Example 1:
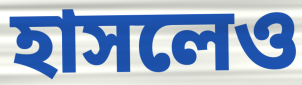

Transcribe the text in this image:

হাসলেও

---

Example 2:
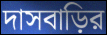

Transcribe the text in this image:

দাসবাড়ির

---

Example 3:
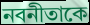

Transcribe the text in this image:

নবনীতাকে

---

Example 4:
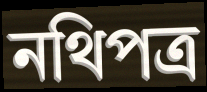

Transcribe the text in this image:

নথিপত্র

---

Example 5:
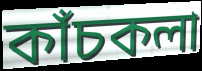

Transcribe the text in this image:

কাঁচকলা